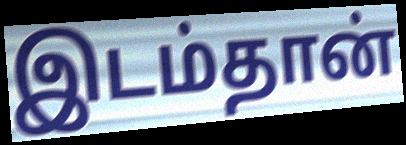
இடம்தான்